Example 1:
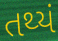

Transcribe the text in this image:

તથ્યં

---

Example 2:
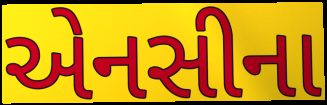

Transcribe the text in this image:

એનસીના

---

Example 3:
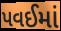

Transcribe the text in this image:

પવઈમાં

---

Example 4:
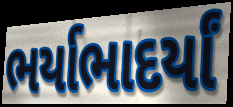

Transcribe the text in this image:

ભર્યાભાદર્યાં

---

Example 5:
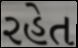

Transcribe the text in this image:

રહેત